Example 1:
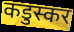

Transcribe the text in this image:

कडुस्कर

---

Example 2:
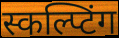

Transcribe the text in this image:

स्कल्प्टिंग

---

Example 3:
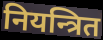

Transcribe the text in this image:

नियन्त्रित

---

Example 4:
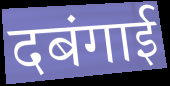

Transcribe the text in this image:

दबंगाई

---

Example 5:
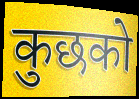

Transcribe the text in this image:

कुछको